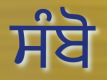
ਸੰਬੋ